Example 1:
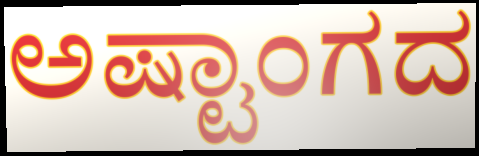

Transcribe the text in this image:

ಅಷ್ಟಾಂಗದ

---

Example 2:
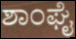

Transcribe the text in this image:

ಶಾಂಘೈ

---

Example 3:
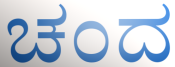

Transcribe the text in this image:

ಚಂದ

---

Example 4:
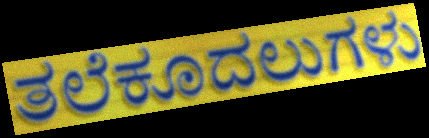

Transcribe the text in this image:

ತಲೆಕೂದಲುಗಳು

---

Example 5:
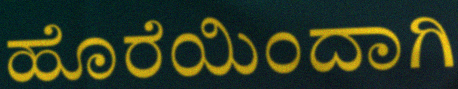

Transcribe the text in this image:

ಹೊರೆಯಿಂದಾಗಿ